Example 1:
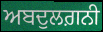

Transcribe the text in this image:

ਅਬਦੁਲਗ਼ਨੀ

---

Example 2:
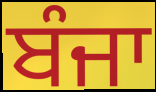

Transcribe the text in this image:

ਬੰਜਾ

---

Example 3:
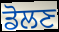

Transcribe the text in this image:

ਡੋਲਣ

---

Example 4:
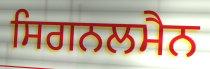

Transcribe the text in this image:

ਸਿਗਨਲਮੈਨ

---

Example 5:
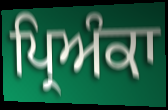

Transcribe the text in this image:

ਪ੍ਰਿਅੰਕਾ